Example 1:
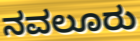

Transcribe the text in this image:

ನವಲೂರು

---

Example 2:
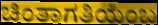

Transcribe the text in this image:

ಚಿಂತಾಗತಿಯೆಂಬ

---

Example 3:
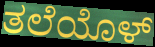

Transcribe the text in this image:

ತಲೆಯೊಳ್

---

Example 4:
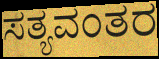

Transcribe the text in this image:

ಸತ್ಯವಂತರ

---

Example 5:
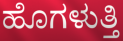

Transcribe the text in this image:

ಹೊಗಳುತ್ತಿ